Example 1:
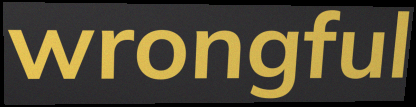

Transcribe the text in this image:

wrongful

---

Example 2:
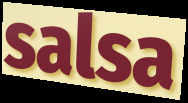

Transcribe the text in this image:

salsa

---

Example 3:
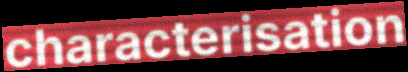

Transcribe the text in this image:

characterisation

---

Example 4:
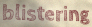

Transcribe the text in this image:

blistering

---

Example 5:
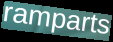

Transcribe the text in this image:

ramparts